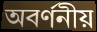
অবর্ণনীয়